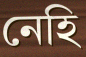
নেহি